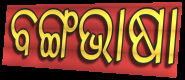
ବଙ୍ଗଭାଷା